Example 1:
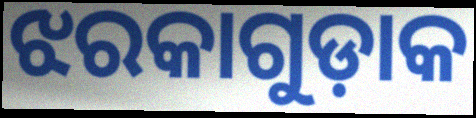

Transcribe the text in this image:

ଝରକାଗୁଡ଼ାକ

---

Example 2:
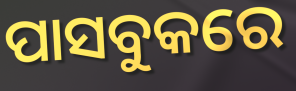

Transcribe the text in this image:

ପାସବୁକରେ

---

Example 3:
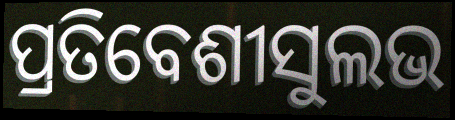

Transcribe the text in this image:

ପ୍ରତିବେଶୀସୁଲଭ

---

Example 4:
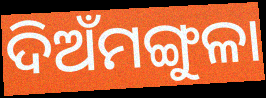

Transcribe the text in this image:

ଦିଅଁମଙ୍ଗୁଳା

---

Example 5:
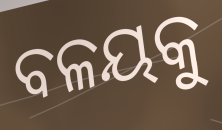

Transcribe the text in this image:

ବଳୟକୁ